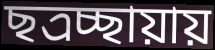
ছত্রচ্ছায়ায়